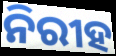
ନିରୀହ